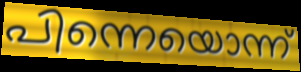
പിന്നെയൊന്ന്